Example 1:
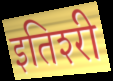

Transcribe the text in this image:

इतिश्री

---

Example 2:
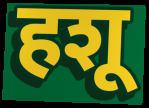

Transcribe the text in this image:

हशू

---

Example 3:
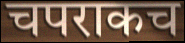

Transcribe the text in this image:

चपराकच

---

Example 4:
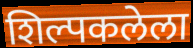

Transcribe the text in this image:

शिल्पकलेला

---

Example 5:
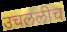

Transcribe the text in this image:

उचललीच